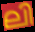
ലി